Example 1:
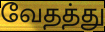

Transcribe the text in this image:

வேதத்து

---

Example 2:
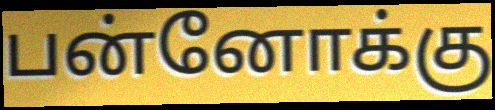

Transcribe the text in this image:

பன்னோக்கு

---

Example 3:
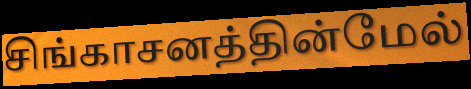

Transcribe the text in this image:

சிங்காசனத்தின்மேல்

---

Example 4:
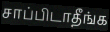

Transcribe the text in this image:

சாப்பிடாதீங்க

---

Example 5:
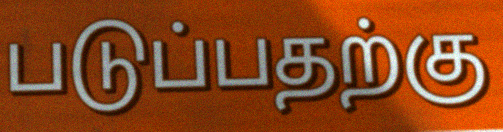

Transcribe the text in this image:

படுப்பதற்கு